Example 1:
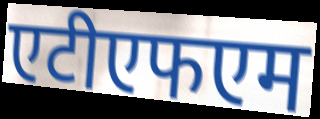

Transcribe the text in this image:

एटीएफएम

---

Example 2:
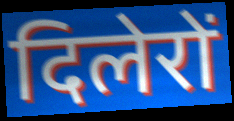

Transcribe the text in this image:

दिलेरों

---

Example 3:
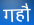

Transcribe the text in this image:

गहौ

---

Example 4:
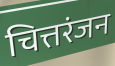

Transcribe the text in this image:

चित्तरंजन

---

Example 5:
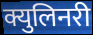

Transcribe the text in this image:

क्युलिनरी